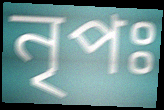
নৃপঃ